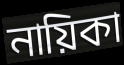
নায়িকা